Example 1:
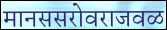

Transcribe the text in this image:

मानससरोवराजवळ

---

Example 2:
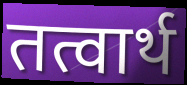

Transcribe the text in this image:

तत्वार्थ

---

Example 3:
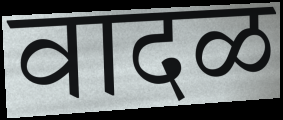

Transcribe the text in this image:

वादळ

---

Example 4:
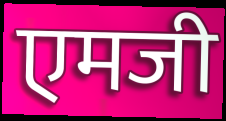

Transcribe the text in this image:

एमजी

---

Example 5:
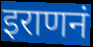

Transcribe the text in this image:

इराणनं